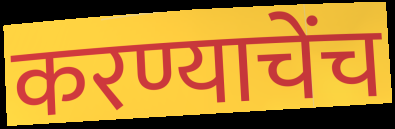
करण्याचेंच